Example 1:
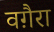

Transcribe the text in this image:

वग़ैरा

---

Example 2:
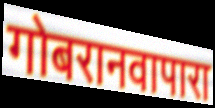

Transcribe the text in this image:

गोबरानवापारा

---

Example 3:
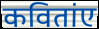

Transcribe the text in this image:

कवितांए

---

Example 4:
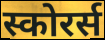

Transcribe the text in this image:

स्कोरर्स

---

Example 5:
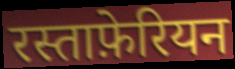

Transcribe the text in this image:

रस्ताफ़ेरियन